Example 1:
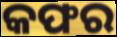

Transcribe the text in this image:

କଫର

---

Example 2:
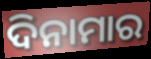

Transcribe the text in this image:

ଦିନାମାର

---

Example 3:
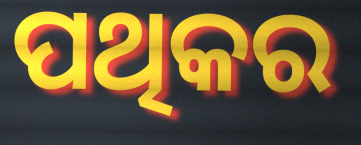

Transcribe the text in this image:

ପଥିକର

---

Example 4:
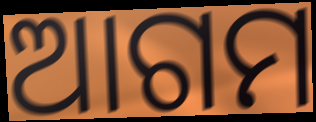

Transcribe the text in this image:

ଆଗମ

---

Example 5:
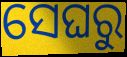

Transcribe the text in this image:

ସେଘରୁ